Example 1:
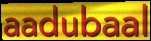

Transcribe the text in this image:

aadubaal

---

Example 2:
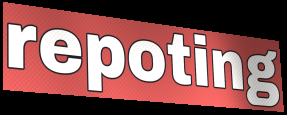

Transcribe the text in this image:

repoting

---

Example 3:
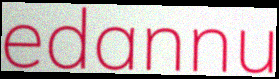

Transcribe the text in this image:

edannu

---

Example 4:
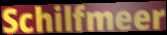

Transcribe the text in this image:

Schilfmeer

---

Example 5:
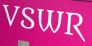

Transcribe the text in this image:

VSWR